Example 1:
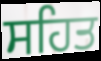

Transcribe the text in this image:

ਸਹਿਤ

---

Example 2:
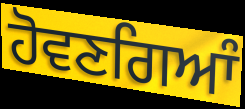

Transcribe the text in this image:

ਹੋਵਣਗਿਆੰ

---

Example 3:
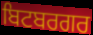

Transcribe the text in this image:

ਬਿਟਬਰਗਰ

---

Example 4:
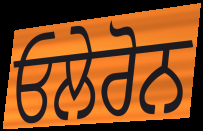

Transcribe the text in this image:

ਓਲੇਰੋਨ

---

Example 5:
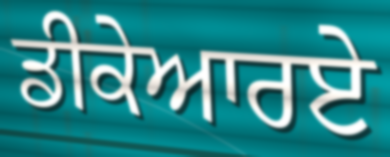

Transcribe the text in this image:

ਡੀਕੇਆਰਏ